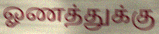
ஓணத்துக்கு